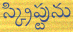
స్క్రిప్టును